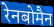
रेनबोमैन